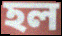
হল